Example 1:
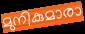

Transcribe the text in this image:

മുനികുമാരാ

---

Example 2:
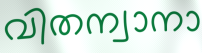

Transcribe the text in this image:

വിതന്വാനാ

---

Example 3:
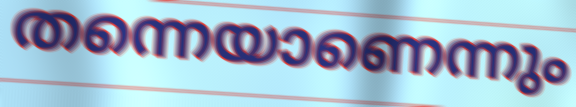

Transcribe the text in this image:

തന്നെയാണെന്നും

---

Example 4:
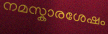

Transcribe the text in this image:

നമസ്കാരശേഷം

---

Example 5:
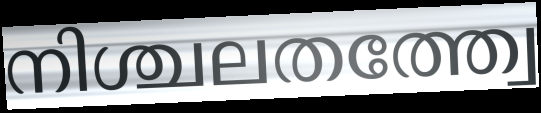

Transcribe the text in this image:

നിശ്ചലതത്ത്വേ